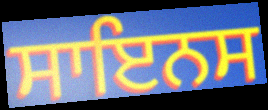
ਸਾਇਨਸ